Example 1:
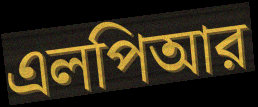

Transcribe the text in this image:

এলপিআর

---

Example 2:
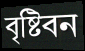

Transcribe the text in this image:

বৃষ্টিবন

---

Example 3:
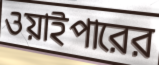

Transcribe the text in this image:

ওয়াইপারের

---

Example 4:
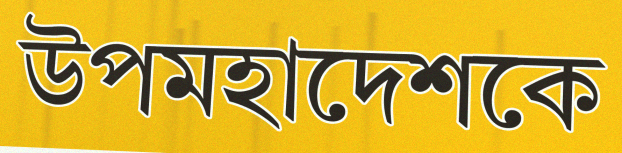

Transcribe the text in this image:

উপমহাদেশকে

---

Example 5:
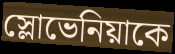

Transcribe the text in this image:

স্লোভেনিয়াকে